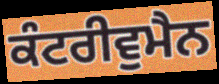
ਕੰਟਰੀਵੁਮੈਨ